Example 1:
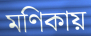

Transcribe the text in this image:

মণিকায়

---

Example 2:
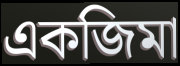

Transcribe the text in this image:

একজিমা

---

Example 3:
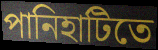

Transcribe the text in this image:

পানিহাটিতে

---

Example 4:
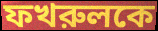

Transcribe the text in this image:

ফখরুলকে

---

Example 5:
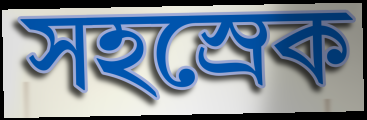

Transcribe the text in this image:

সহস্রেক